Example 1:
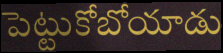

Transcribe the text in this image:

పెట్టుకోబోయాడు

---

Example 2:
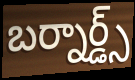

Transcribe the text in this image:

బర్నార్డ్స్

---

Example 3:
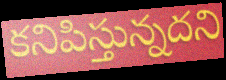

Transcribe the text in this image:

కనిపిస్తున్నదని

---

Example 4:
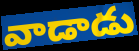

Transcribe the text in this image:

వాడాడు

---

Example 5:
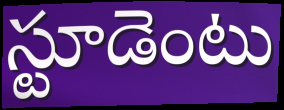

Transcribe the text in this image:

స్టూడెంటు